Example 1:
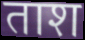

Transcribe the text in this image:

ताश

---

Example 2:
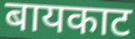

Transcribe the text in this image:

बायकाट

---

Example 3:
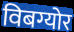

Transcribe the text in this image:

विबग्योर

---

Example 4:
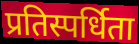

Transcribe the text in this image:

प्रतिस्पर्धिता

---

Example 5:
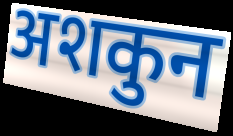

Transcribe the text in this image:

अशकुन